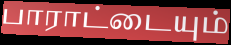
பாராட்டையும்